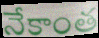
నేకాంత